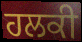
ਹਲਕੀ